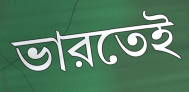
ভারতেই